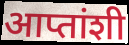
आप्तांशी